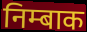
निम्बाक